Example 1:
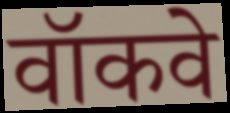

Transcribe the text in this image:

वॉकवे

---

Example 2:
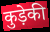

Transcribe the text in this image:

कुड़ेकी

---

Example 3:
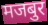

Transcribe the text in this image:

मजबुर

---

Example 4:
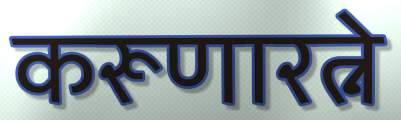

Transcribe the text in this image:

करूणारत्ने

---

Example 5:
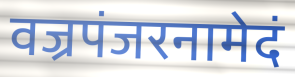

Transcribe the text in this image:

वज्रपंजरनामेदं